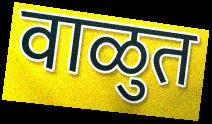
वाळुत